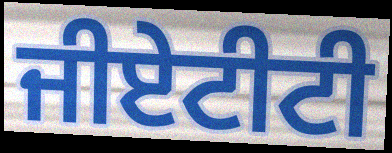
ਜੀਏਟੀਟੀ